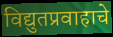
विद्युतप्रवाहाचे